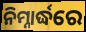
ନିମ୍ନାର୍ଦ୍ଧରେ